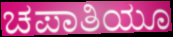
ಚಪಾತಿಯೂ